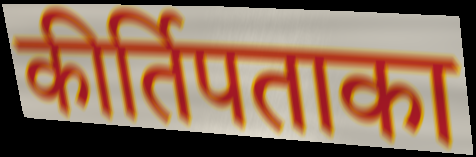
कीर्तिपताका